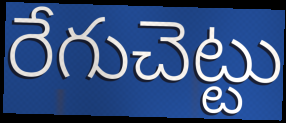
రేగుచెట్టు